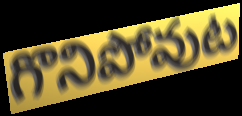
గొనిపోవుట